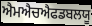
ਐਮਐਚਐਫਡਬਲਯੂ